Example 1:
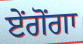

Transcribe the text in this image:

ਏਂਗੋਂਗਾ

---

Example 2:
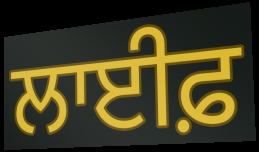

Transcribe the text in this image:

ਲਾਈਫ਼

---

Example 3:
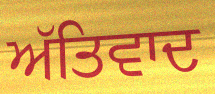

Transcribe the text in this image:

ਅੱਤਿਵਾਦ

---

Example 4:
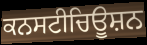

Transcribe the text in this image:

ਕਨਸਟੀਚਿਊਸ਼ਨ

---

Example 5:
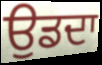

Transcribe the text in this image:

ਉਡਦਾ